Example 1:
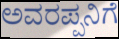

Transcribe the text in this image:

ಅವರಪ್ಪನಿಗೆ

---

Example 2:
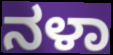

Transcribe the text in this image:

ನಳಾ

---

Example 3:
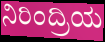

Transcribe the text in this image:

ನಿರಿಂದ್ರಿಯ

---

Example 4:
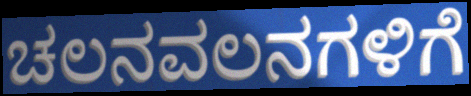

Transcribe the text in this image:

ಚಲನವಲನಗಳಿಗೆ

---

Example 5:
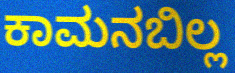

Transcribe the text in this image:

ಕಾಮನಬಿಲ್ಲ